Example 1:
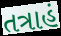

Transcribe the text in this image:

તત્રાહં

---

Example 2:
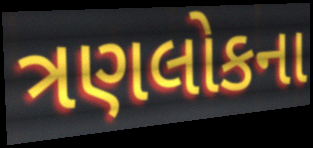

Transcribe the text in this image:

ત્રણલોકના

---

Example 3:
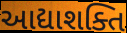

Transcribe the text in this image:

આદ્યાશક્તિ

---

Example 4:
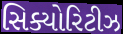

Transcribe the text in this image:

સિક્યોરિટીઝ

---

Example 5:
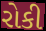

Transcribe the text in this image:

રોકી